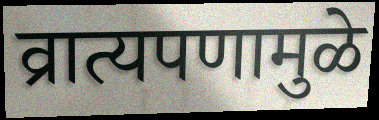
व्रात्यपणामुळे